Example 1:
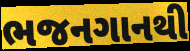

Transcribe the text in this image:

ભજનગાનથી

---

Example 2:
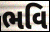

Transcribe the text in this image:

ભવિ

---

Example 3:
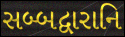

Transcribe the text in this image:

સબ્બદ્વારાનિ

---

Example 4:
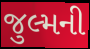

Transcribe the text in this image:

જુલ્મની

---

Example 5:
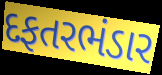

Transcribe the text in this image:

દફતરભંડાર